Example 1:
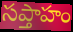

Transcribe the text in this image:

సప్తాహం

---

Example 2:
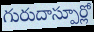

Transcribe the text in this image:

గురుదాస్పూర్లో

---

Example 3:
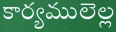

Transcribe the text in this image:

కార్యములెల్ల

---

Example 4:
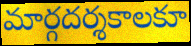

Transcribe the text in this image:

మార్గదర్శకాలకూ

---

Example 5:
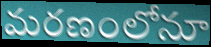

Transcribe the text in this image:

మరణంలోనూ